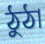
ঠুঠা